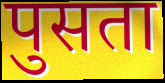
पुसता